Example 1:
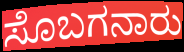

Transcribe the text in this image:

ಸೊಬಗನಾರು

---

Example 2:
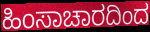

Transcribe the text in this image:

ಹಿಂಸಾಚಾರದಿಂದ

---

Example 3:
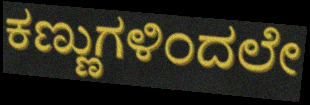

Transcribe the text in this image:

ಕಣ್ಣುಗಳಿಂದಲೇ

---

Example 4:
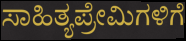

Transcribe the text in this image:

ಸಾಹಿತ್ಯಪ್ರೇಮಿಗಳಿಗೆ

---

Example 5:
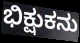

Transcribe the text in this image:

ಭಿಕ್ಷುಕನು